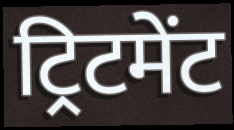
ट्रिटमेंट